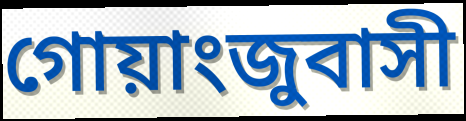
গোয়াংজুবাসী